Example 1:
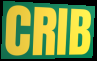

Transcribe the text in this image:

CRIB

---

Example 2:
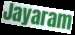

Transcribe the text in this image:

Jayaram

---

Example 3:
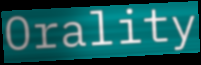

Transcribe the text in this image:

Orality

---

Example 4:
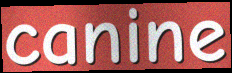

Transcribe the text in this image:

canine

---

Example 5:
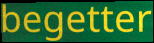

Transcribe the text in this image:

begetter